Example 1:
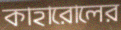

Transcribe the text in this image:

কাহারোলের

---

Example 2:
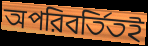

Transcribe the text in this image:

অপরিবর্তিতই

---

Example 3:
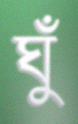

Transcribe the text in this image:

ঘুঁ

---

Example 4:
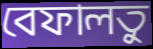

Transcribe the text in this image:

বেফালতু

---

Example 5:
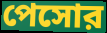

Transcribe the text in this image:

পেসোর